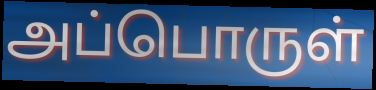
அப்பொருள்